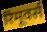
रिमूवर्स